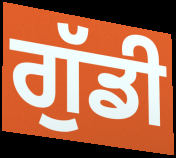
ਗੁੱਡੀ